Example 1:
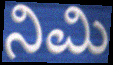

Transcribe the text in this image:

ನಿಮಿ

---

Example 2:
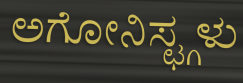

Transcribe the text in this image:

ಅಗೋನಿಸ್ಟ್ಗಳು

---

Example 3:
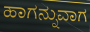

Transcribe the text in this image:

ಹಾಗನ್ನುವಾಗ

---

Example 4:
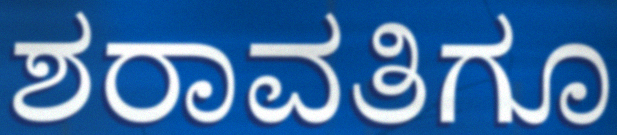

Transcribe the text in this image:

ಶರಾವತಿಗೂ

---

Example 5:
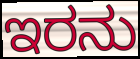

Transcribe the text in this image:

ಇರನು